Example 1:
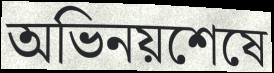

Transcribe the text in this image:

অভিনয়শেষে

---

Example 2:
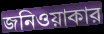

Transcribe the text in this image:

জনিওয়াকার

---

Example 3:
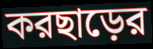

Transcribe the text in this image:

করছাড়ের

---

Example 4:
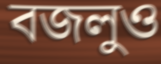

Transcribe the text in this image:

বজলুও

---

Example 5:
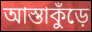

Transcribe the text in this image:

আস্তাকুঁড়ে